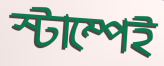
স্টাম্পেই